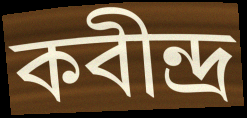
কবীন্দ্র